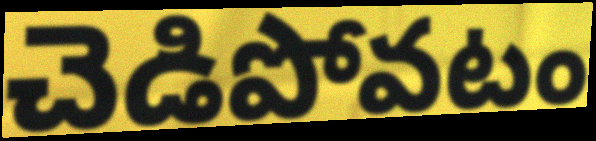
చెడిపోవటం